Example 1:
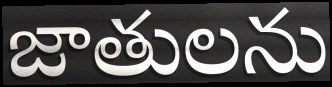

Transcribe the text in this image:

జాతులను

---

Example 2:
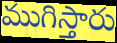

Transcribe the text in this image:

ముగిస్తారు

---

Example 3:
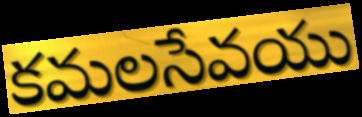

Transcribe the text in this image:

కమలసేవయు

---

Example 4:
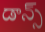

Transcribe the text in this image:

డాన్స్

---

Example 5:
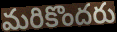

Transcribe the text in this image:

మరికొందరు